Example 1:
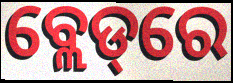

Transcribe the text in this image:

ବ୍ଲେଡ୍‌ରେ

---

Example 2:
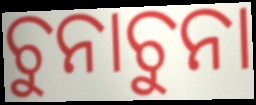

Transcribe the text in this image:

ଚୁନାଚୁନା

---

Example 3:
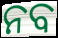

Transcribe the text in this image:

ନବ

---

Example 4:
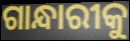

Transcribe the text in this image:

ଗାନ୍ଧାରୀକୁ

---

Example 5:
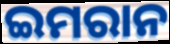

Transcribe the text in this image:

ଇମରାନ